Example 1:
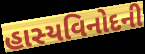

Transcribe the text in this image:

હાસ્યવિનોદની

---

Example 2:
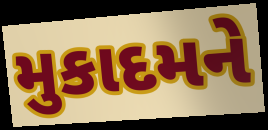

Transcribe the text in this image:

મુકાદમને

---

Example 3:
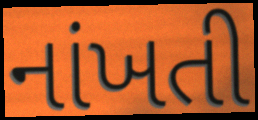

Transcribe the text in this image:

નાંખતી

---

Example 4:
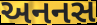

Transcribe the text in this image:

અનનસ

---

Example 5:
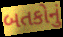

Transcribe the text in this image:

બતકોનું